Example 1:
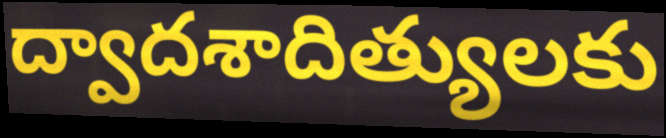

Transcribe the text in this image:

ద్వాదశాదిత్యులకు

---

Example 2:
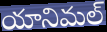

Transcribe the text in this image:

యానిమల్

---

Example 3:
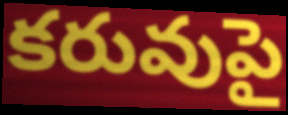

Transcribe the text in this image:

కరువుపై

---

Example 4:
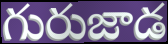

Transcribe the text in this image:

గురుజాడ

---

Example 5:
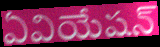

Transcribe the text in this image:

ఏవియేషన్